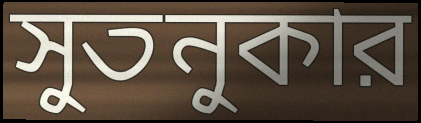
সুতনুকার